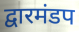
द्वारमंडप